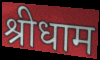
श्रीधाम